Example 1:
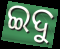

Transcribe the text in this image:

ଇଦୁ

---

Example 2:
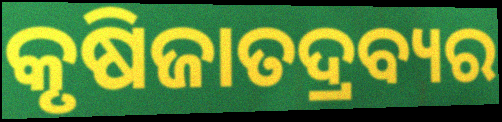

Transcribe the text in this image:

କୃଷିଜାତଦ୍ରବ୍ୟର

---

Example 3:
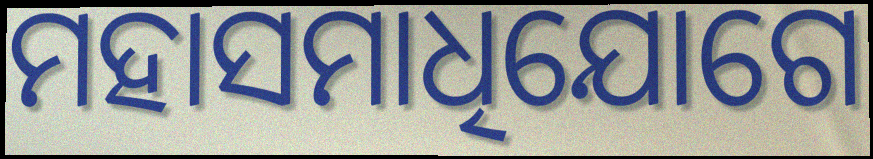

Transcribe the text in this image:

ମହାସମାଧିଯୋଗେ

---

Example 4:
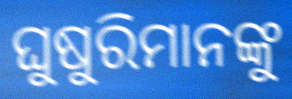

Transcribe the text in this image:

ଘୁଷୁରିମାନଙ୍କୁ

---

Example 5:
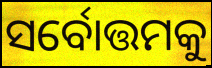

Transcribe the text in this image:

ସର୍ବୋତ୍ତମକୁ